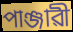
পাঞ্জাৱী